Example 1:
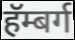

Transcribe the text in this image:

हॅम्बर्ग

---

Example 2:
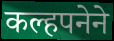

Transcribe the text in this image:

कल्हपनेने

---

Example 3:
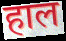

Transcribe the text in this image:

हाल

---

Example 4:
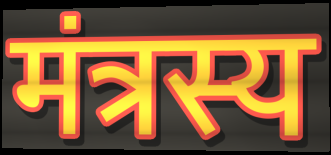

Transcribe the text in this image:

मंत्रस्य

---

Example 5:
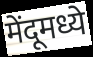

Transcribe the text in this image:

मेंदूमध्ये